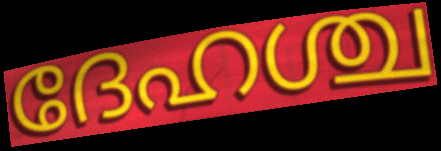
ദേഹശ്ച